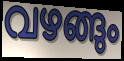
വഴങ്ങും